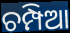
ଚମ୍ପିଆ